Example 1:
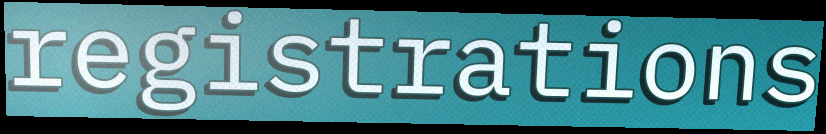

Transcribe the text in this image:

registrations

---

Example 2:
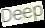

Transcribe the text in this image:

Deep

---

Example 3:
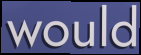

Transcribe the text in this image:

would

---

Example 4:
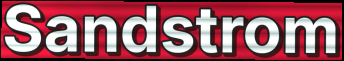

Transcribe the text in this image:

Sandstrom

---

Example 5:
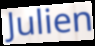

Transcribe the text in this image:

Julien